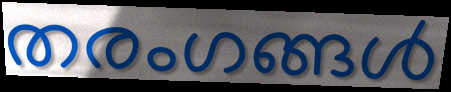
തരംഗങ്ങൾ